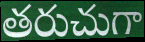
తరుచుగా